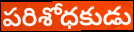
పరిశోధకుడు